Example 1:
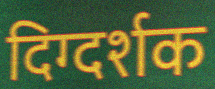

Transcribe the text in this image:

दिग्दर्शक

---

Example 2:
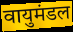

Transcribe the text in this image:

वायुमंडल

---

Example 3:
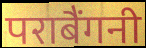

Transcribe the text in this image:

पराबैंगनी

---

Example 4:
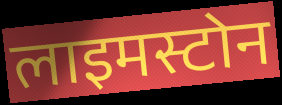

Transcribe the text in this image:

लाइमस्टोन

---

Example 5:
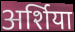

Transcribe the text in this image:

अर्शिया